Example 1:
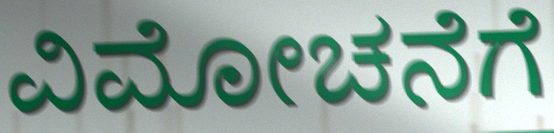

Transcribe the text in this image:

ವಿಮೋಚನೆಗೆ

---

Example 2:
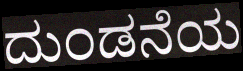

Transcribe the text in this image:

ದುಂಡನೆಯ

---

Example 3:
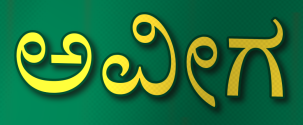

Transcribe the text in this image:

ಅವೀಗ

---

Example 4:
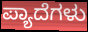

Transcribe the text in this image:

ಪ್ಯಾದೆಗಳು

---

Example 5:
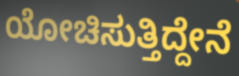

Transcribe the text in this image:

ಯೋಚಿಸುತ್ತಿದ್ದೇನೆ